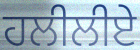
ਹਲੀਲੀਏ